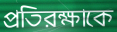
প্রতিরক্ষাকে